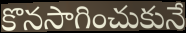
కొనసాగించుకునే